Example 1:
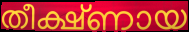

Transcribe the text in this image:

തീക്ഷ്ണായ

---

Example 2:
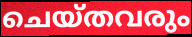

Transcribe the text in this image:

ചെയ്തവരും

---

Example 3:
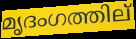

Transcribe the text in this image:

മൃദംഗത്തില്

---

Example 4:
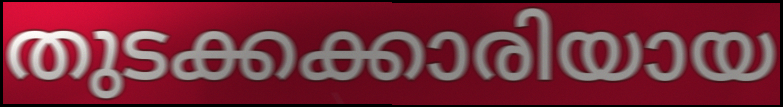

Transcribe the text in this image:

തുടക്കക്കാരിയായ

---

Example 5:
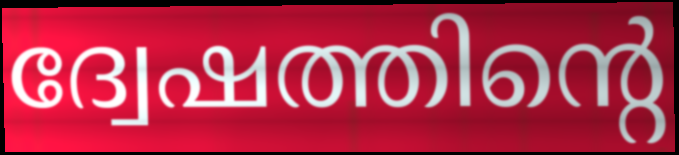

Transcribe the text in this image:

ദ്വേഷത്തിന്റെ